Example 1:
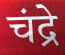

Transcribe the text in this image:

चंद्रे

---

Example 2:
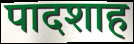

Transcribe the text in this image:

पादशाह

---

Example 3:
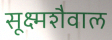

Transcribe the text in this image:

सूक्ष्मशैवाल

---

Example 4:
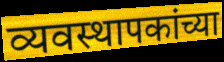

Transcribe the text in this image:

व्यवस्थापकांच्या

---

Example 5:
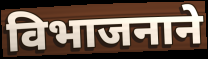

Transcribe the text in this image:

विभाजनाने